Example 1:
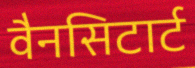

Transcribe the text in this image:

वैनसिटार्ट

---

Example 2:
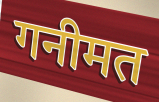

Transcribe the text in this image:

गनीमत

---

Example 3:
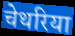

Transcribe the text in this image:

चेथरिया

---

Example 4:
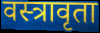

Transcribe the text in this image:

वस्त्रावृता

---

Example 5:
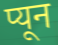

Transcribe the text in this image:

प्यून